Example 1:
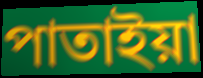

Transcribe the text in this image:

পাতাইয়া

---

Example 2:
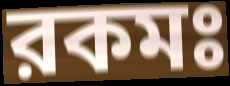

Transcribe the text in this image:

রকমঃ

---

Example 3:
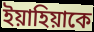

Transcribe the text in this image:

ইয়াহিয়াকে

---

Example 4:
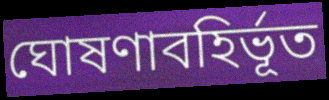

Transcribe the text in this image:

ঘোষণাবহির্ভূত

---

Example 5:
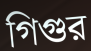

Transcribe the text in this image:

গিগুর